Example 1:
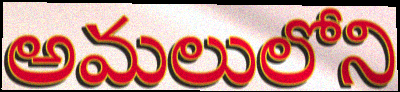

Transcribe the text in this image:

అమలులోని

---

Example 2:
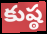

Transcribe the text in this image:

కుష్ఠ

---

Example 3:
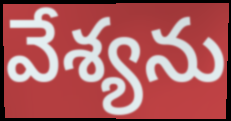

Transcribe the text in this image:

వేశ్యను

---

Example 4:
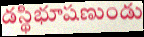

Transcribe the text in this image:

డస్థిభూషణుండు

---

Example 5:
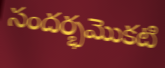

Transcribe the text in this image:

సందర్భమొకటి